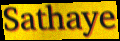
Sathaye